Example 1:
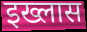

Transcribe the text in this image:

इख्लास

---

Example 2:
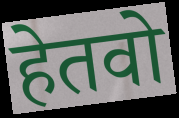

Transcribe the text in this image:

हेतवो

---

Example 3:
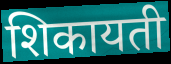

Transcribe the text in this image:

शिकायती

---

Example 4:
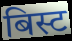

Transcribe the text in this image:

बिस्ट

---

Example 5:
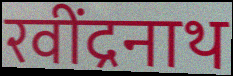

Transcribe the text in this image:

रवींद्रनाथ